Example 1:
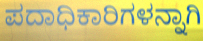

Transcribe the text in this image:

ಪದಾಧಿಕಾರಿಗಳನ್ನಾಗಿ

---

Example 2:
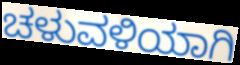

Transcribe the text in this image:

ಚಳುವಳಿಯಾಗಿ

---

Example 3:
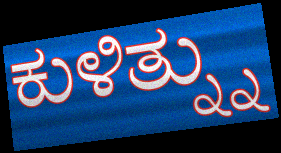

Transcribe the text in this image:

ಕುಳಿತ್ನ್ನು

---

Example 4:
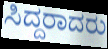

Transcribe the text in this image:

ಸಿದ್ದರಾದರು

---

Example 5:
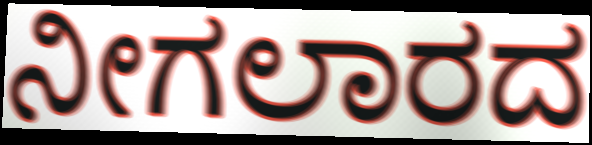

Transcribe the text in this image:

ನೀಗಲಾರದ